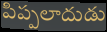
పిప్పలాదుడు